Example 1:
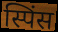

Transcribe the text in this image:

स्पिंस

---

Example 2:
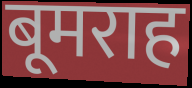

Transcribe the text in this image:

बूमराह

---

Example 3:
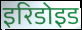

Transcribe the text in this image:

इरिडोइड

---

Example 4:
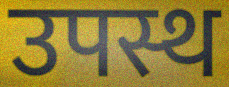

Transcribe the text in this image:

उपस्थ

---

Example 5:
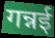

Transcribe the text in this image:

गन्नई